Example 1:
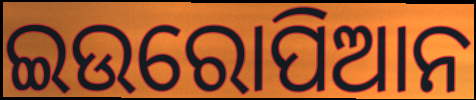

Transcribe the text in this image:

ଇଉରୋପିଆନ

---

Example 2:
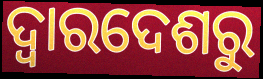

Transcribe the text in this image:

ଦ୍ଵାରଦେଶରୁ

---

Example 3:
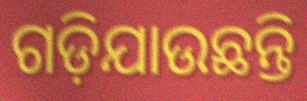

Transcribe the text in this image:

ଗଡ଼ିଯାଉଛନ୍ତି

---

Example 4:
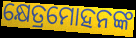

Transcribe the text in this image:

କ୍ଷେତ୍ରମୋହନଙ୍କ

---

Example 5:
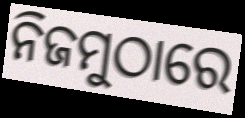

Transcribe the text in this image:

ନିଜମୁଠାରେ